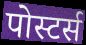
पोस्टर्स